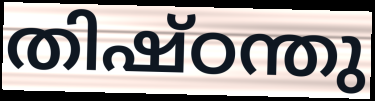
തിഷ്ഠന്തു